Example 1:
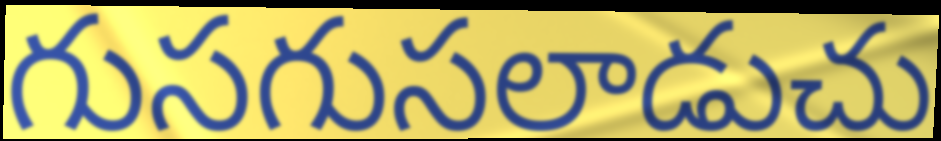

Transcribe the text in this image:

గుసగుసలాడుచు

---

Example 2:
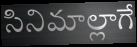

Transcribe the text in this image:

సినిమాల్లాగే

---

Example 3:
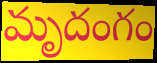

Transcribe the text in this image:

మృదంగం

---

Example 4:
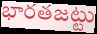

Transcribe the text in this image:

భారతజట్టు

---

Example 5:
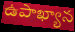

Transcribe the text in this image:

ఉపాఖ్యాన